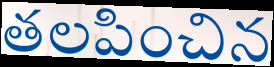
తలపించిన